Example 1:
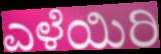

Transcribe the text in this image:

ಎಳೆಯಿರಿ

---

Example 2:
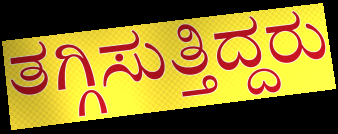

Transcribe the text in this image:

ತಗ್ಗಿಸುತ್ತಿದ್ದರು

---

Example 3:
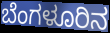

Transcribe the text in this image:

ಬೆಂಗಳೂರಿನ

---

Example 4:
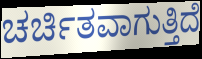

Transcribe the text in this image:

ಚರ್ಚಿತವಾಗುತ್ತಿದೆ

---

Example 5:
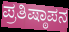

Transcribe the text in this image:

ಪ್ರತಿಷ್ಠಾಪನ